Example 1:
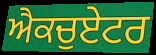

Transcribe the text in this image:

ਐਕਚੁਏਟਰ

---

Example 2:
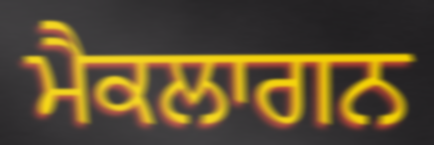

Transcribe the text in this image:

ਮੈਕਲਾਗਨ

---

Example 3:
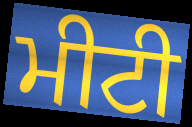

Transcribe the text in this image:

ਮੀਟੀ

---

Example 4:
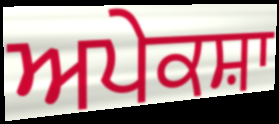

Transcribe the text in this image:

ਅਪੇਕਸ਼ਾ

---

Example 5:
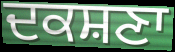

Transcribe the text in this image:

ਦਕਸ਼ਣਾ